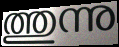
ത്തുന്നു